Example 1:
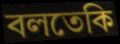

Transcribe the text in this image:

বলতেকি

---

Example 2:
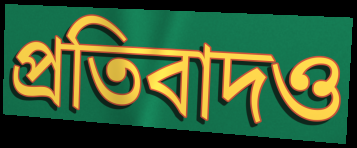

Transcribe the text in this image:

প্রতিবাদও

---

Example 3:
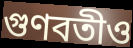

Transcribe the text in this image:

গুণবতীও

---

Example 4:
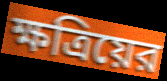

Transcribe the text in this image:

ক্ষত্রিয়ের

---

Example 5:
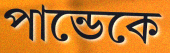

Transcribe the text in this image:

পান্ডেকে